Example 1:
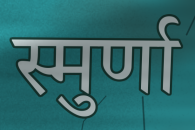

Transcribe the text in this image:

स्मुर्णा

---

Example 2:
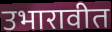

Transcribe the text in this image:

उभारावीत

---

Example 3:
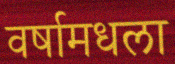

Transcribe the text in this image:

वर्षामधला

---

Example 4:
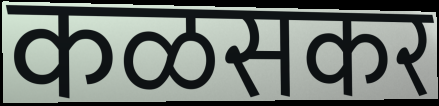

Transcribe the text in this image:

कळसकर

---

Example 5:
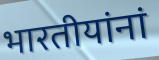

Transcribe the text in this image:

भारतीयांनां